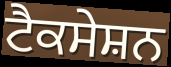
ਟੈਕਸੇਸ਼ਨ